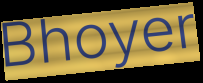
Bhoyer